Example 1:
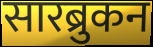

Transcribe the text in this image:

सारब्रुकन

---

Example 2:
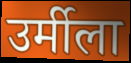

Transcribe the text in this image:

उर्मीला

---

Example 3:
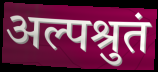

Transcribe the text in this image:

अल्पश्रुतं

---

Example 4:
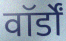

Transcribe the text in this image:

वॉर्डों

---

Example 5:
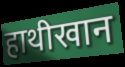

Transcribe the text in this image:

हाथीखान